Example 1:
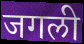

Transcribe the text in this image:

जगली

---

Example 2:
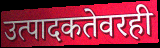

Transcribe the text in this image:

उत्पादकतेवरही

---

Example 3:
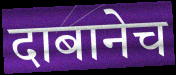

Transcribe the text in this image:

दाबानेच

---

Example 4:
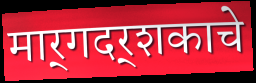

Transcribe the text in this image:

मार्गदर्शकाचे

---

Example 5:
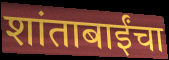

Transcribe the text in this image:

शांताबाईंचा